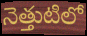
నెత్తుటిలో